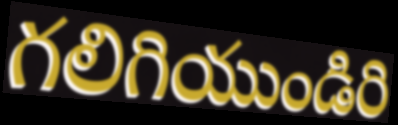
గలిగియుండిరి